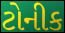
ટોનીક